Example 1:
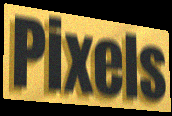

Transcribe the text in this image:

Pixels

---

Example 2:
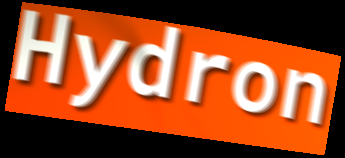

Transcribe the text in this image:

Hydron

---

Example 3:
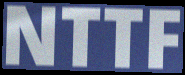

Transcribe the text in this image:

NTTF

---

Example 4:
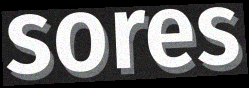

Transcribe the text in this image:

sores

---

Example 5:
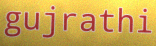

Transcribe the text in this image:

gujrathi